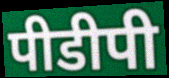
पीडीपी